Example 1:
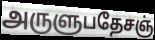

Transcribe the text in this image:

அருளுபதேசஞ்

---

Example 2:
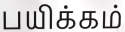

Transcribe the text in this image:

பயிக்கம்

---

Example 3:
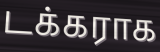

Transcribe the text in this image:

டக்கராக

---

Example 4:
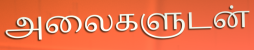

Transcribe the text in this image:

அலைகளுடன்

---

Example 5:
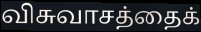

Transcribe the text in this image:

விசுவாசத்தைக்